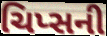
ચિપ્સની